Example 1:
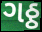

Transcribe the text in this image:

ગઠ્ઠ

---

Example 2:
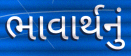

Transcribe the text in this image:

ભાવાર્થનું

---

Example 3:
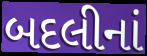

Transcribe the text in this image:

બદલીનાં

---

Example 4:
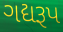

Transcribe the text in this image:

ગદ્યરૂપ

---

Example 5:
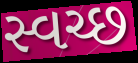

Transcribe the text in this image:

સ્વચ્છ